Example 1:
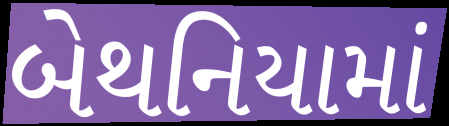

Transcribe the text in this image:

બેથનિયામાં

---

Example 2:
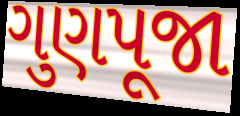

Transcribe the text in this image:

ગુણપૂજા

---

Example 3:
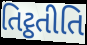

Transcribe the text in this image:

તિટ્ઠતીતિ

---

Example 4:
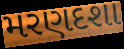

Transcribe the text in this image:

મરણદશા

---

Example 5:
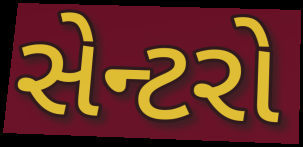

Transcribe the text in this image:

સેન્ટરો